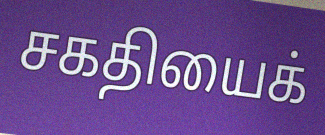
சகதியைக்